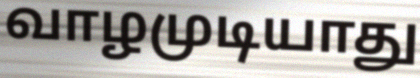
வாழமுடியாது